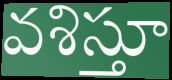
వశిస్తూ